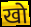
खो